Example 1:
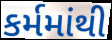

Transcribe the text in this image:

કર્મમાંથી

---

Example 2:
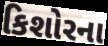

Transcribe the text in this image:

કિશોરના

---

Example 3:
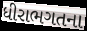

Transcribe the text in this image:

ધીરાભગતના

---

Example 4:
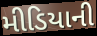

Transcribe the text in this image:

મીડિયાની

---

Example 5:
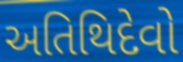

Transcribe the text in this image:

અતિથિદેવો